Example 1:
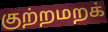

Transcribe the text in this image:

குற்றமறக்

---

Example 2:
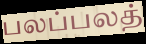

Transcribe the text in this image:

பலப்பலத்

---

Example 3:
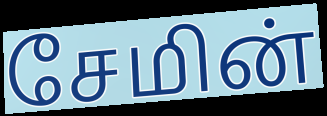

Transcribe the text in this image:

சேமின்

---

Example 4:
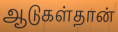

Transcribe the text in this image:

ஆடுகள்தான்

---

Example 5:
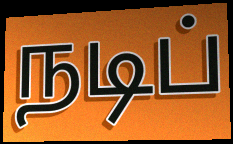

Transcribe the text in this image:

நடிப்